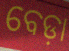
ବେଡ଼ା